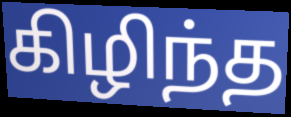
கிழிந்த